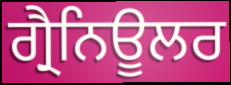
ਗ੍ਰੈਨਿਊਲਰ